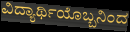
ವಿದ್ಯಾರ್ಥಿಯೊಬ್ಬನಿಂದ